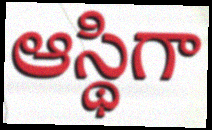
ఆస్థిగా